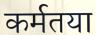
कर्मतया